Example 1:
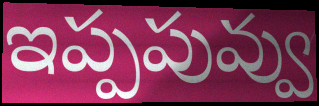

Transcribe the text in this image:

ఇప్పపువ్వు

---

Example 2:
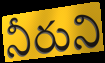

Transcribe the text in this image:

నీరుని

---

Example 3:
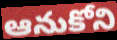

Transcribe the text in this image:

ఆనుకోని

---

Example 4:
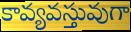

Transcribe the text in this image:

కావ్యవస్తువుగా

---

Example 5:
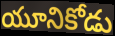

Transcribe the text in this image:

యూనికోడు